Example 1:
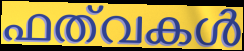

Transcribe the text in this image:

ഫത്‌വകൾ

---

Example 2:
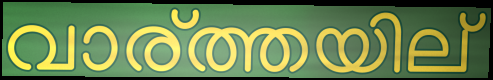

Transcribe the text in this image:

വാര്ത്തയില്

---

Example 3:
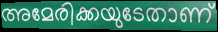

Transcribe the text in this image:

അമേരിക്കയുടേതാണ്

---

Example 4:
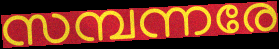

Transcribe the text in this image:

സമ്പന്നരേ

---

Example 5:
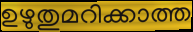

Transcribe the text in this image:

ഉഴുതുമറിക്കാത്ത